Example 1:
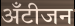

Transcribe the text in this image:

अँटीजन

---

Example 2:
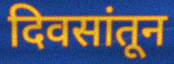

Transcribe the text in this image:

दिवसांतून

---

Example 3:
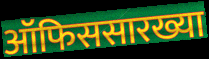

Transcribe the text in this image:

ऑफिससारख्या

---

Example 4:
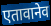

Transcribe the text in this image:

एतावानेव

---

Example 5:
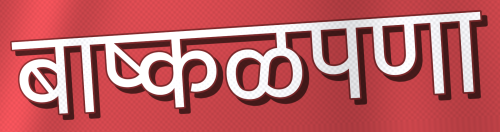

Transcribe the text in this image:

बाष्कळपणा